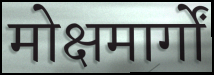
मोक्षमार्गों